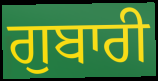
ਗੁਬਾਰੀ